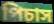
পিচাস